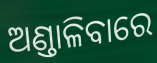
ଅଣ୍ଡାଳିବାରେ